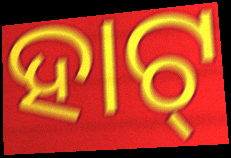
ହାଟ୍